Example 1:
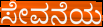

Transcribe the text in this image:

ಸೇವನೆಯ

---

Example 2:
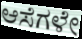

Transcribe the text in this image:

ಆಸೆಗಳೇ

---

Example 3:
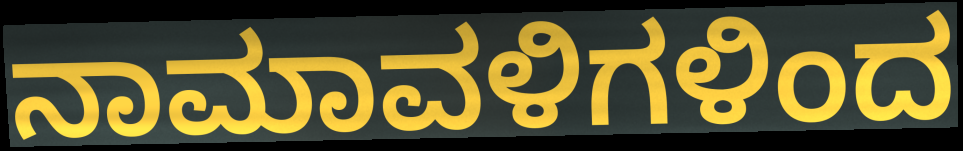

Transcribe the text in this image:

ನಾಮಾವಳಿಗಳಿಂದ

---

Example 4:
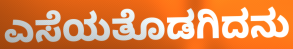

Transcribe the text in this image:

ಎಸೆಯತೊಡಗಿದನು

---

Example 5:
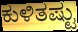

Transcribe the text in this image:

ಕುಳಿತಷ್ಟು